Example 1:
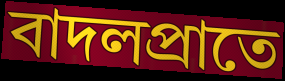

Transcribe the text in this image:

বাদলপ্রাতে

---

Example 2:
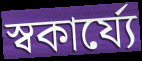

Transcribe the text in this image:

স্বকার্য্যে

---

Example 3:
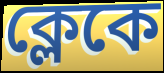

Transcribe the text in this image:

ক্লেকে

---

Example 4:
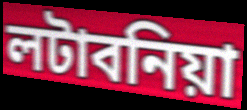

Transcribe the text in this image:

লটাবনিয়া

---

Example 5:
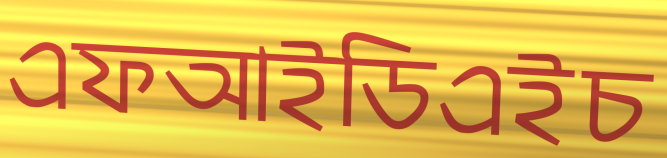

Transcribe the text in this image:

এফআইডিএইচ